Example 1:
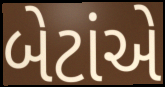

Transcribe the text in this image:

બેટાંએ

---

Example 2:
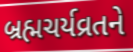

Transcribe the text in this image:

બ્રહ્મચર્યવ્રતને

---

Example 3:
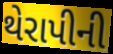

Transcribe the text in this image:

થેરાપીની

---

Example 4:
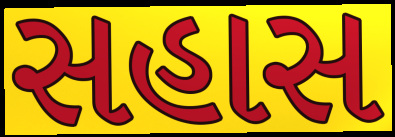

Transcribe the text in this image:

સહાસ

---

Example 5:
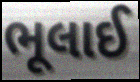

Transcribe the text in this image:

ભૂલાઈ